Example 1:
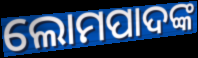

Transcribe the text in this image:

ଲୋମପାଦଙ୍କ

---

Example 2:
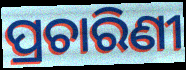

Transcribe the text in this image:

ପ୍ରଚାରିଣୀ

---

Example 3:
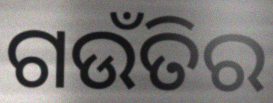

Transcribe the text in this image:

ଗଉଁତିର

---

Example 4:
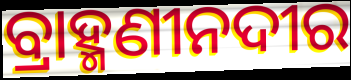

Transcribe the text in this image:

ବ୍ରାହ୍ମଣୀନଦୀର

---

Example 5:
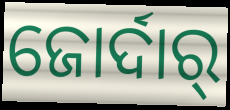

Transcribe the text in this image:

ଜୋର୍ଦାର୍